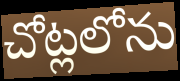
చోట్లలోను